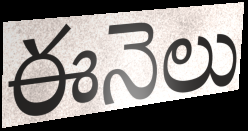
ఈనెలు